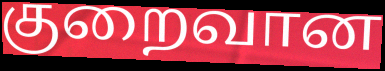
குறைவான